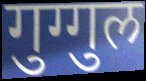
गुग्गुल